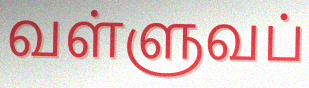
வள்ளுவப்